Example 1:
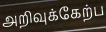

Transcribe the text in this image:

அறிவுக்கேற்ப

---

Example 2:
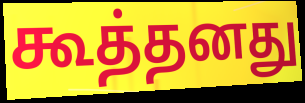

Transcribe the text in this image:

கூத்தனது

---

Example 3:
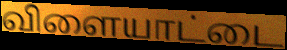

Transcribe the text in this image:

விளையாட்டை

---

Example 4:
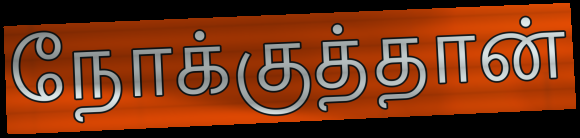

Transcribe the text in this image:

நோக்குத்தான்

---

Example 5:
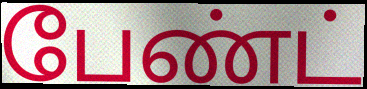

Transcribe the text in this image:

பேண்ட்